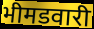
भीमडवारी